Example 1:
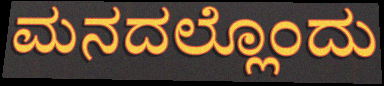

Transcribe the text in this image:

ಮನದಲ್ಲೊಂದು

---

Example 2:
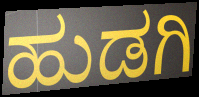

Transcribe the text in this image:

ಹುಡಗಿ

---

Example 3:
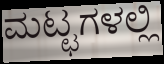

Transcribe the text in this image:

ಮಟ್ಟಗಳಲ್ಲಿ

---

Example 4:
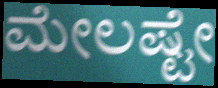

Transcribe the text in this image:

ಮೇಲಷ್ಟೇ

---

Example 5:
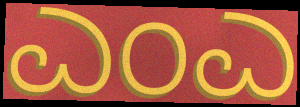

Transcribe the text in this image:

ಎಂಎ